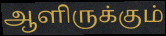
ஆளிருக்கும்